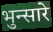
भुन्सारे